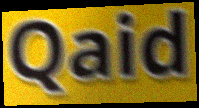
Qaid